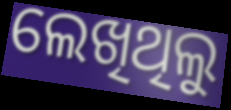
ଲେଖିଥିଲୁ